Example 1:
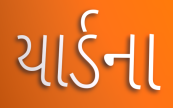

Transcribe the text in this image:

યાર્ડના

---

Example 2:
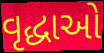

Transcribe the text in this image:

વૃદ્ધાઓ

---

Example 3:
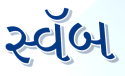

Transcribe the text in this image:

સ્વૅબ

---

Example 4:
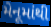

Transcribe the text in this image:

મેનૂમાંથી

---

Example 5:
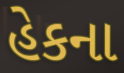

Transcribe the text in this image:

હેકના